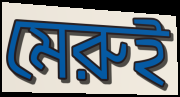
মেরুই